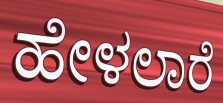
ಹೇಳಲಾರೆ